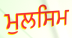
ਮੁਲਸਿਮ